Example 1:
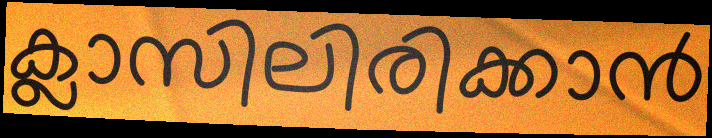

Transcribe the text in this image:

ക്ലാസിലിരിക്കാൻ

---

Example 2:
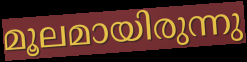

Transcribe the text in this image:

മൂലമായിരുന്നു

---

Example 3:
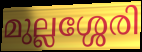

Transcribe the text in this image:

മുല്ലശ്ശേരി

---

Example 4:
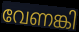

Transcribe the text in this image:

വേണങ്കി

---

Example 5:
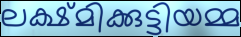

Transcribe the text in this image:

ലക്ഷ്മിക്കുട്ടിയമ്മ